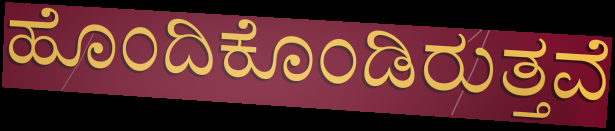
ಹೊಂದಿಕೊಂಡಿರುತ್ತವೆ